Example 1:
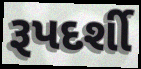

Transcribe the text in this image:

રૂપદર્શી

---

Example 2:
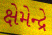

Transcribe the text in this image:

ક્ષેમેન્દ્રે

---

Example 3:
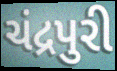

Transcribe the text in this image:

ચંદ્રપુરી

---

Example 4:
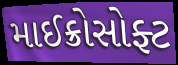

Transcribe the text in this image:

માઈક્રોસોફ્ટ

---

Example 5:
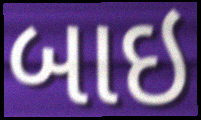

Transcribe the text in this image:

બાઇ